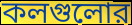
কলগুলোর